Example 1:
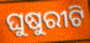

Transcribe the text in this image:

ଘୁଷୁରୀଟି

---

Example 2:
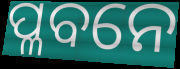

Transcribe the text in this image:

ପ୍ଳବନେ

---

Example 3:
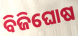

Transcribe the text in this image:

ବିଜିଘୋଷ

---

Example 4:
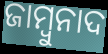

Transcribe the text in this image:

ଜାମ୍ବୁନାଦ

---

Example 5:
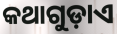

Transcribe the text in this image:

କଥାଗୁଡ଼ାଏ